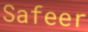
Safeer